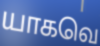
யாகவெ